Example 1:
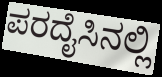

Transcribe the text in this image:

ಪರದೈಸಿನಲ್ಲಿ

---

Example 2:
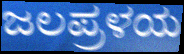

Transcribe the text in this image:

ಜಲಪ್ರಳಯ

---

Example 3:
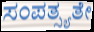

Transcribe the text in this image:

ಸಂಪತ್ಸ್ಯತೇ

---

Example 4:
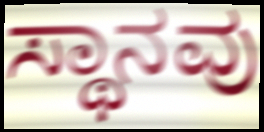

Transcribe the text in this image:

ಸ್ಥಾನವು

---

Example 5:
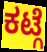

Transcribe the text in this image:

ಕಟ್ಗೆ